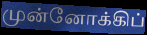
முன்னோக்கிப்